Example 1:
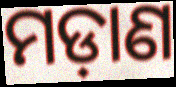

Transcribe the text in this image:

ମଡ଼ାଣ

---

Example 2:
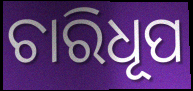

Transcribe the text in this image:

ଚାରିଧୂପ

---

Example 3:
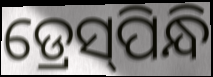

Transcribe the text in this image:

ଡ୍ରେସ୍‌ପିନ୍ଧି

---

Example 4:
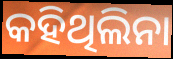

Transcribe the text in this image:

କହିଥିଲିନା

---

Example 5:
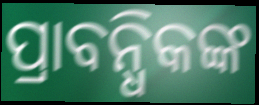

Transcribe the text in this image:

ପ୍ରାବନ୍ଧିକଙ୍କ